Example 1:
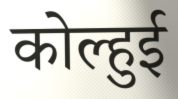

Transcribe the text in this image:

कोल्हुई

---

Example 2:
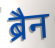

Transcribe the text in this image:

ब्रैन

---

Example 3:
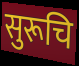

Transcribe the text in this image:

सुरूचि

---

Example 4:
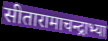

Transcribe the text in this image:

सीतारामाचन्द्राभ्या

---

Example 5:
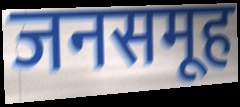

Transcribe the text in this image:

जनसमूह